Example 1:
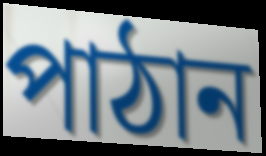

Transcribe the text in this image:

পাঠান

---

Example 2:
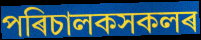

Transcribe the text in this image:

পৰিচালকসকলৰ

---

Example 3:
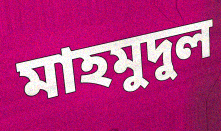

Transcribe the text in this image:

মাহমুদুল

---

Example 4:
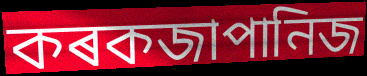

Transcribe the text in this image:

কৰকজাপানিজ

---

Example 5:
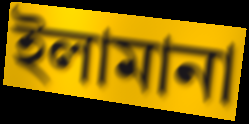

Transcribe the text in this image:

ইলামানা